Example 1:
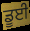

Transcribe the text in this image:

ਡੂਈ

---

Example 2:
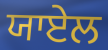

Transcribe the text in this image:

ਯਾਏਲ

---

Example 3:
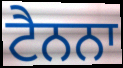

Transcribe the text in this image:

ਟੈਨਨਾ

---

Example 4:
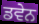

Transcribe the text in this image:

ਡਵੇਨ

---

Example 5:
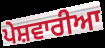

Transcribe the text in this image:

ਪੇਸ਼ਵਾਰੀਆ